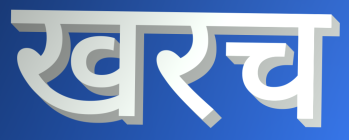
खरच